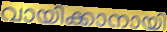
വായിക്കാനായി